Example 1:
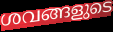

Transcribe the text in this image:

ശവങ്ങളുടെ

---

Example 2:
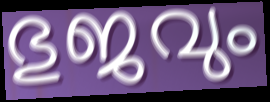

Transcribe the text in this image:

ഭുജവും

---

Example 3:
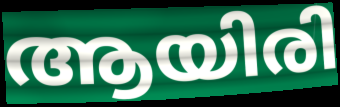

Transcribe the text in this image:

ആയിരി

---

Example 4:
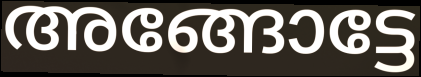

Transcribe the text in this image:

അങ്ങോട്ടേ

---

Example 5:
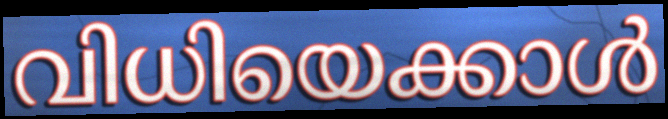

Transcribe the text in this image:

വിധിയെക്കാൾ